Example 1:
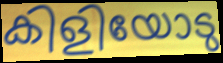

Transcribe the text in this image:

കിളിയോടു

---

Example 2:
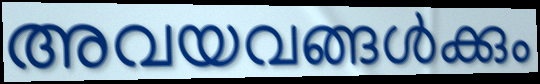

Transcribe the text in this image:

അവയവങ്ങൾക്കും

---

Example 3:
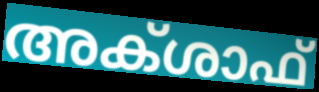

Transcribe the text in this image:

അക്ശാഫ്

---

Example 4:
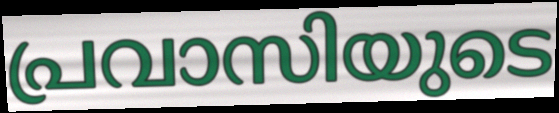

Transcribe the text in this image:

പ്രവാസിയുടെ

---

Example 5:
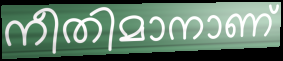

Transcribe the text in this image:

നീതിമാനാണ്